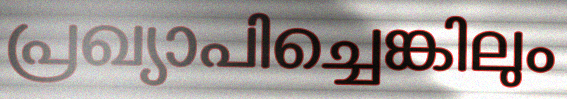
പ്രഖ്യാപിച്ചെങ്കിലും